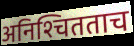
अनिश्चितताच